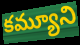
కమ్యూని